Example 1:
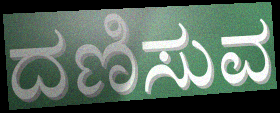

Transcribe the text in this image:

ದಣಿಸುವ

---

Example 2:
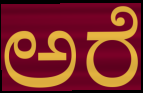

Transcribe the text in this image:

ಅರೆ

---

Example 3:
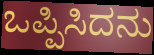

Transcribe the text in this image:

ಒಪ್ಪಿಸಿದನು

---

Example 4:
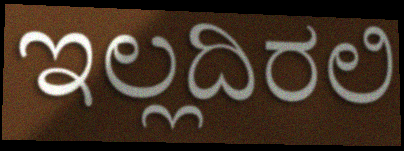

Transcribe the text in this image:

ಇಲ್ಲದಿರಲಿ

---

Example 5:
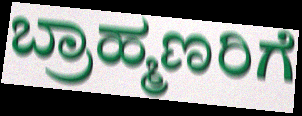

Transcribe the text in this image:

ಬ್ರಾಹ್ಮಣರಿಗೆ